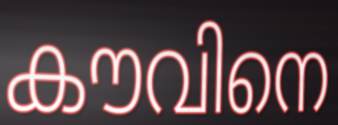
കൗവിനെ